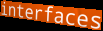
interfaces